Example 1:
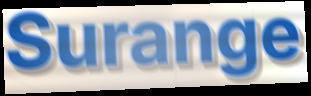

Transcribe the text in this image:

Surange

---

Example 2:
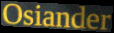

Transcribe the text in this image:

Osiander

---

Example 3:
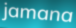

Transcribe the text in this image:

jamana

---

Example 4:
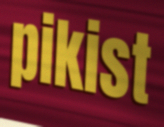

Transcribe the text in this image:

pikist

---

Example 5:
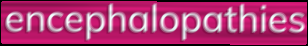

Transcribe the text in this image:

encephalopathies